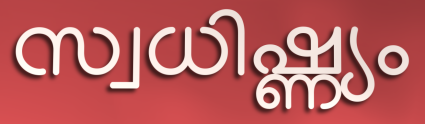
സ്വധിഷ്ണ്യം